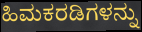
ಹಿಮಕರಡಿಗಳನ್ನು